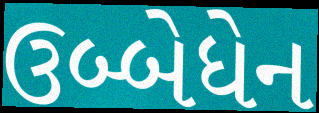
ઉબ્બેધેન